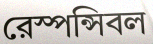
রেস্পন্সিবল